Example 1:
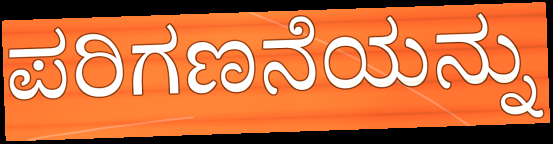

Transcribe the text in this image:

ಪರಿಗಣನೆಯನ್ನು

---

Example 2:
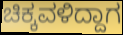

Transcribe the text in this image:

ಚಿಕ್ಕವಳಿದ್ದಾಗ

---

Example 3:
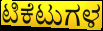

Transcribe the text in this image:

ಟಿಕೆಟುಗಳ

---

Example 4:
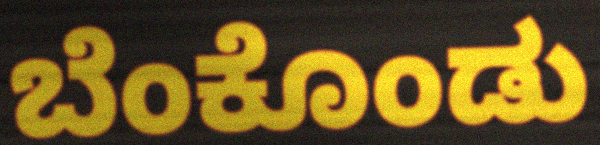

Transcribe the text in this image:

ಬೆಂಕೊಂಡು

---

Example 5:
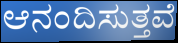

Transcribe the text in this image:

ಆನಂದಿಸುತ್ತವೆ